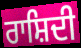
ਰਾਸ਼ਿਦੀ